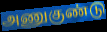
அணுகுண்டு